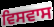
ਵਿਸਵਾਸ